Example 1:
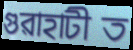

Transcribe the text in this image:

গুৱাহাটীত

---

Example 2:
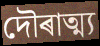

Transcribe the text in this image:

দৌৰাত্ম্য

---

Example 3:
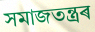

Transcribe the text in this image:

সমাজতন্ত্ৰৰ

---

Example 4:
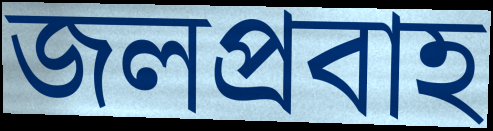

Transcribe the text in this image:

জলপ্ৰবাহ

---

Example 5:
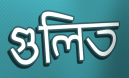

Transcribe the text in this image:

গুলিত